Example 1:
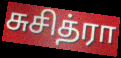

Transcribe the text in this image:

சுசித்ரா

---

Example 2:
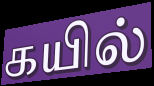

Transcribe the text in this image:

கயில்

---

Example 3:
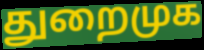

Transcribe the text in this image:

துறைமுக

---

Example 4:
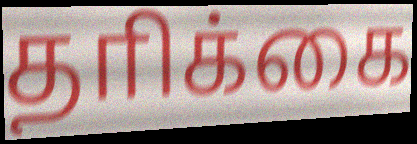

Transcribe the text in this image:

தரிக்கை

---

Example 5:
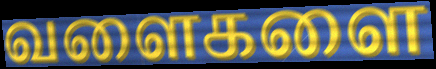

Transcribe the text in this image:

வளைகளை